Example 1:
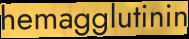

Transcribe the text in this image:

hemagglutinin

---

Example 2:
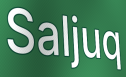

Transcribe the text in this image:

Saljuq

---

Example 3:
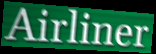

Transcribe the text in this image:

Airliner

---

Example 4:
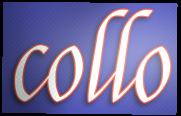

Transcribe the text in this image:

collo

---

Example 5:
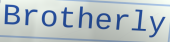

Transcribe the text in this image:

Brotherly